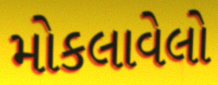
મોકલાવેલો